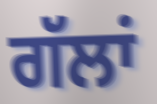
ਗੱਲਾਂ